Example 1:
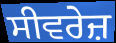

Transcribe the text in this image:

ਸੀਵਰੇਜ਼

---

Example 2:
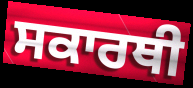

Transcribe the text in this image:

ਸਕਾਰਥੀ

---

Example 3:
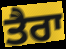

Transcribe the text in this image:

ਤੈਰਾ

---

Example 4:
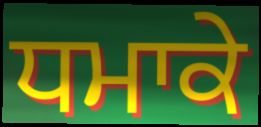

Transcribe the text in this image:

ਧਮਾਕੇ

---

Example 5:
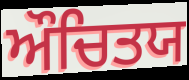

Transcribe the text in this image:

ਔਚਿਤਯ